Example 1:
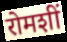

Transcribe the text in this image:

रोमशीं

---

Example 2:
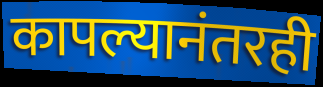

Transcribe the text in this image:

कापल्यानंतरही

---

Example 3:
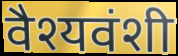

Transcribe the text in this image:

वैश्यवंशी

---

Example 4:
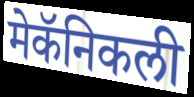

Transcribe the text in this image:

मेकॅनिकली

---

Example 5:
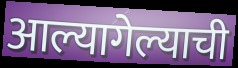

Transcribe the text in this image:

आल्यागेल्याची